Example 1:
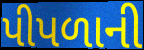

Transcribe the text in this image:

પીપળાની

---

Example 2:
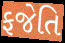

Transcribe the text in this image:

ફજેતિ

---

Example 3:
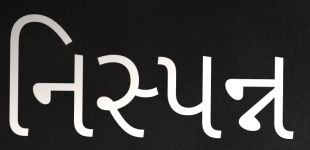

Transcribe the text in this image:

નિસ્પન્ન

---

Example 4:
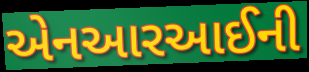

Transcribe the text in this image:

એનઆરઆઈની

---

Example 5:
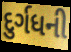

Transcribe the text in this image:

દુર્ગધની